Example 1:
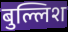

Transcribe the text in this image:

बुल्लिश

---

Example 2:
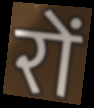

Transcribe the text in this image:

रों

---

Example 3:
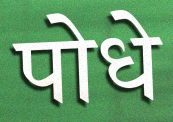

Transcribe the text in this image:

पोधे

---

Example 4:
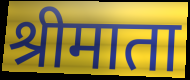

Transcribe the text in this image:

श्रीमाता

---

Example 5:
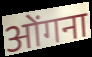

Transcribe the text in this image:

ओंगना